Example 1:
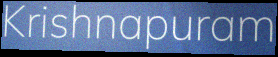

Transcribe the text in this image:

Krishnapuram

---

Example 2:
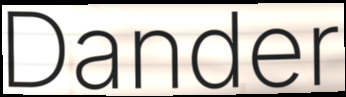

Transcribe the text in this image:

Dander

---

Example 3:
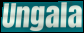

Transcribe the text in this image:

Ungala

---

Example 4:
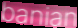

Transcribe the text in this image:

banian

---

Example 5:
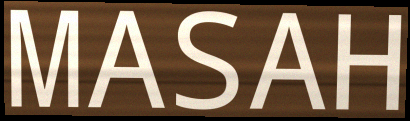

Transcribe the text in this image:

MASAH